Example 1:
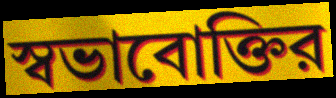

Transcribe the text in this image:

স্বভাবোক্তির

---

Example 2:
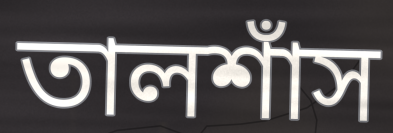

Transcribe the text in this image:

তালশাঁস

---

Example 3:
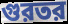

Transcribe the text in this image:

গুরতর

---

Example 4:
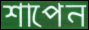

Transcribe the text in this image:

শাপেন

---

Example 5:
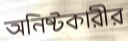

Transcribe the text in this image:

অনিষ্টকারীর